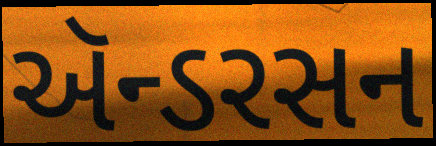
ઍન્ડરસન